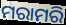
ମରାମରି